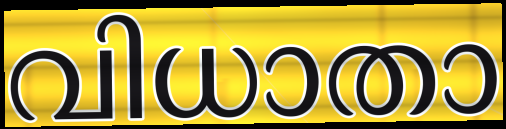
വിധാതാ